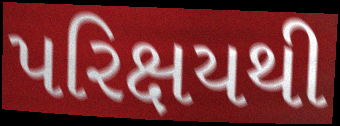
પરિક્ષયથી